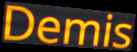
Demis